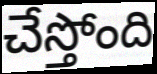
చేస్తోంది